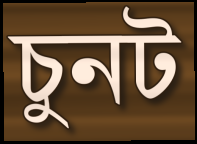
চুনট